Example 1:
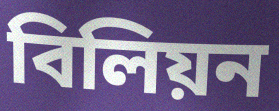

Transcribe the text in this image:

বিলিয়ন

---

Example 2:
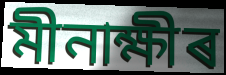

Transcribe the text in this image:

মীনাক্ষীৰ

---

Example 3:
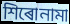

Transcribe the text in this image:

শিৰোনামা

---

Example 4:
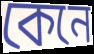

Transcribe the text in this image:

কেনে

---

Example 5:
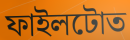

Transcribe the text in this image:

ফাইলটোত